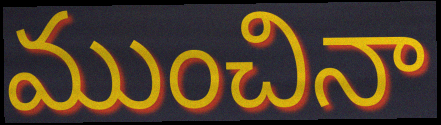
ముంచినా